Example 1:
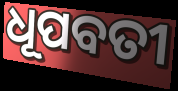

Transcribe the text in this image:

ଧୂପବତୀ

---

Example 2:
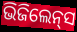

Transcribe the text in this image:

ଭିଜିଲେନ୍‌ସ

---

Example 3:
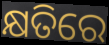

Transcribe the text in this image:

କ୍ଷତିରେ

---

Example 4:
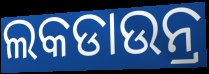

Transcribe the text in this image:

ଲକଡାଉନ୍ର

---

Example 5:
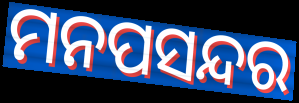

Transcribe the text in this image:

ମନପସନ୍ଦର